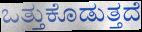
ಒತ್ತುಕೊಡುತ್ತದೆ